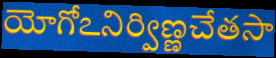
యోగోఽనిర్విణ్ణచేతసా